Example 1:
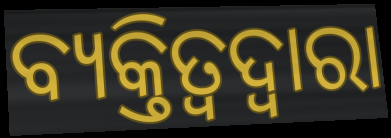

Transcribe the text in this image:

ବ୍ୟକ୍ତିତ୍ୱଦ୍ୱାରା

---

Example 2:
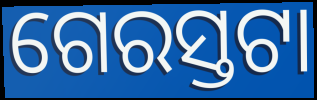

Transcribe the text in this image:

ଗେରସ୍ତଟା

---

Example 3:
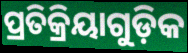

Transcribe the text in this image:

ପ୍ରତିକ୍ରିୟାଗୁଡ଼ିକ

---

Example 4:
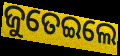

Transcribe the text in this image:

ଜୁତେଇଲେ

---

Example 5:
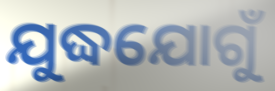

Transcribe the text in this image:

ଯୁଦ୍ଧଯୋଗୁଁ